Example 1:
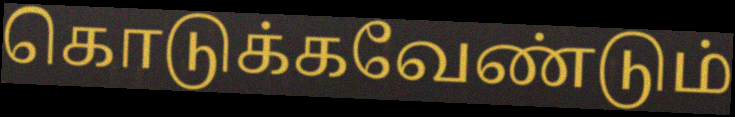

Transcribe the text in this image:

கொடுக்கவேண்டும்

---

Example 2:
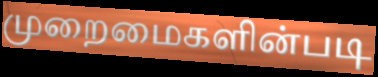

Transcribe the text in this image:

முறைமைகளின்படி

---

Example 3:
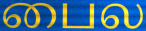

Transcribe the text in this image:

பைல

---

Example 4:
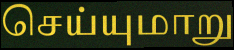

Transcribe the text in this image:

செய்யுமாறு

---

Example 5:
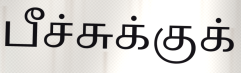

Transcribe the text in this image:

பீச்சுக்குக்